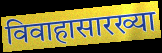
विवाहासारख्या